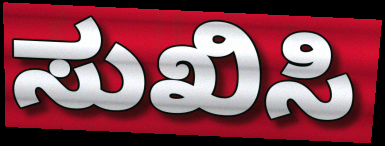
ಸುಖಿಸಿ